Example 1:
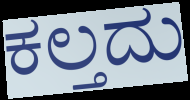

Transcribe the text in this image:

ಕಲ್ತದು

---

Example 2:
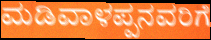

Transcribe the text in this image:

ಮಡಿವಾಳಪ್ಪನವರಿಗೆ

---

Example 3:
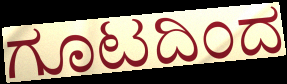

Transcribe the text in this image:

ಗೂಟದಿಂದ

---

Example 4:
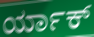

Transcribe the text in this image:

ರ್ಯಾಕ್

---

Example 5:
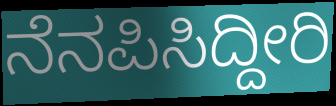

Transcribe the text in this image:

ನೆನಪಿಸಿದ್ದೀರಿ